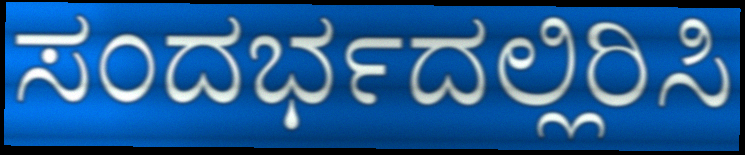
ಸಂದರ್ಭದಲ್ಲಿರಿಸಿ